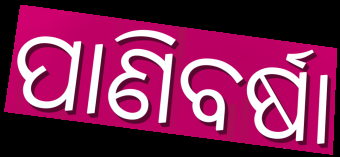
ପାଣିବର୍ଷା